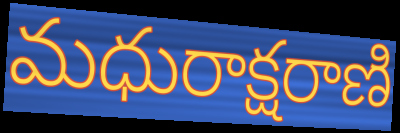
మధురాక్షరాణి